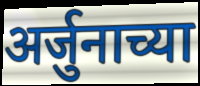
अर्जुनाच्या